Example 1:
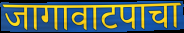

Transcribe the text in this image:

जागावाटपाचा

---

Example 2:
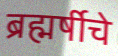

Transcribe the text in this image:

ब्रह्मर्षीचे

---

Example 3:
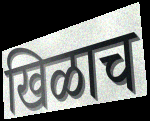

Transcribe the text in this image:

खिळाच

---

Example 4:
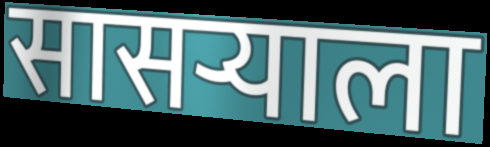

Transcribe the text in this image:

सासर्‍याला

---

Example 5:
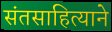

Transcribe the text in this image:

संतसाहित्याने